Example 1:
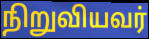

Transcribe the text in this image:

நிறுவியவர்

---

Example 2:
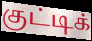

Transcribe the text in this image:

குட்டிக்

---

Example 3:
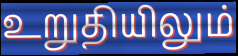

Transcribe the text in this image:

உறுதியிலும்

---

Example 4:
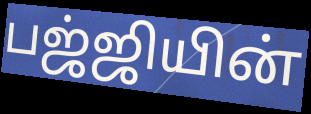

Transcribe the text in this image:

பஜ்ஜியின்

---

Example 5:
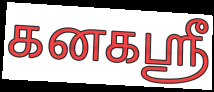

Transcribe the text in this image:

கனகஸ்ரீ